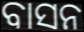
ବାସନ